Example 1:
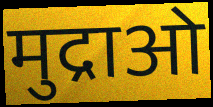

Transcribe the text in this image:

मुद्राओ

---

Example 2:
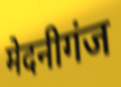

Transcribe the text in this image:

मेदनीगंज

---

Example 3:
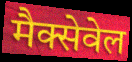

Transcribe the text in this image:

मैक्सेवेल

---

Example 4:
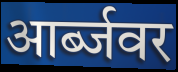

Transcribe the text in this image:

आर्ब्जवर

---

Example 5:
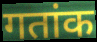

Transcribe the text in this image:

गतांक